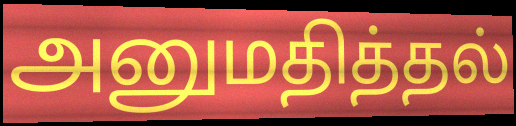
அனுமதித்தல்